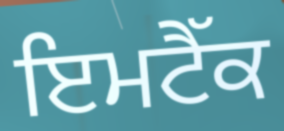
ਇਮਟੈੱਕ